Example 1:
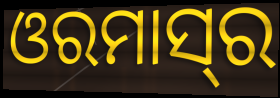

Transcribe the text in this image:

ଓରମାସ୍‌ର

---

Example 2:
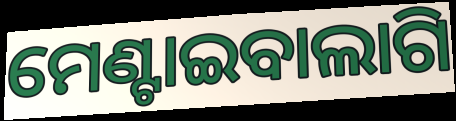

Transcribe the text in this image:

ମେଣ୍ଟାଇବାଲାଗି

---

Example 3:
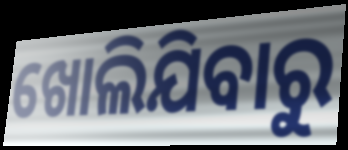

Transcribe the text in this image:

ଖୋଲିଯିବାରୁ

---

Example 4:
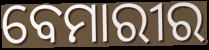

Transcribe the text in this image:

ବେମାରୀର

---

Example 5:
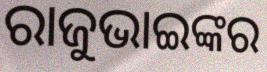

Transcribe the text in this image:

ରାଜୁଭାଇଙ୍କର